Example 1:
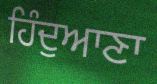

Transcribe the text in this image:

ਹਿੰਦੁਆਣਾ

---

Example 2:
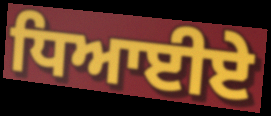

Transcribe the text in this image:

ਧਿਆਈਏ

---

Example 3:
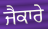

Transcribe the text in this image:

ਜੈਕਾਰੇ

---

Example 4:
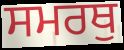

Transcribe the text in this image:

ਸਮਰਥੁ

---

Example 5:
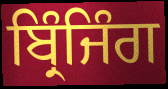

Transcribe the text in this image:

ਬ੍ਰਿੰਜਿੰਗ